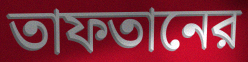
তাফতানের